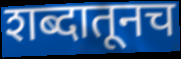
शब्दातूनच